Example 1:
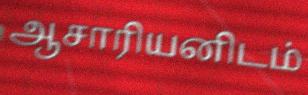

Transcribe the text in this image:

ஆசாரியனிடம்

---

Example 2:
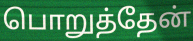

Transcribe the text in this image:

பொறுத்தேன்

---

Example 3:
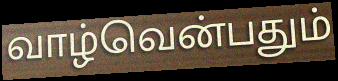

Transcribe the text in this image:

வாழ்வென்பதும்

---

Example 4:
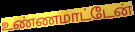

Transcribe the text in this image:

உண்ணமாட்டேன்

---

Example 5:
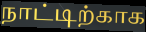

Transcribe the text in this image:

நாட்டிற்காக